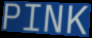
PINK